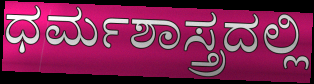
ಧರ್ಮಶಾಸ್ತ್ರದಲ್ಲಿ